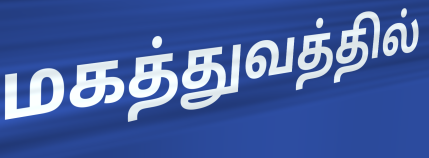
மகத்துவத்தில்